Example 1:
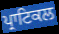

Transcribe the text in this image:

ਪ੍ਰਾਟਿਕਲ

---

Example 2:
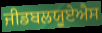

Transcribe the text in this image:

ਜੀਡਬਲਯੂਏਐਸ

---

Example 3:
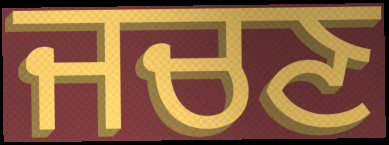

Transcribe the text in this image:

ਜਚਣ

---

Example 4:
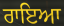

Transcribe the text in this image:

ਰਾਇਆ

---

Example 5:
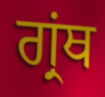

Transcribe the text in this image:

ਗ੍ਰਂਥ